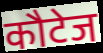
कौटेज